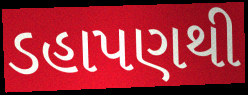
ડહાપણથી